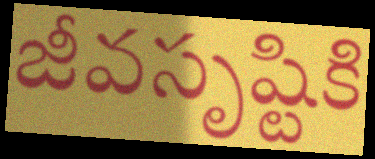
జీవసృష్టికి